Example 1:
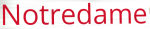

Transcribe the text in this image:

Notredame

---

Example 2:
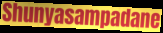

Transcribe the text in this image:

Shunyasampadane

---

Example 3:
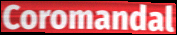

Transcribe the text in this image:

Coromandal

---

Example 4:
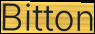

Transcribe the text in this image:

Bitton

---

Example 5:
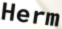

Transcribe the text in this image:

Herm